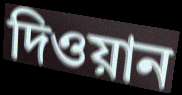
দিওয়ান